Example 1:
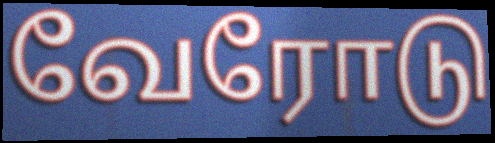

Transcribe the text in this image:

வேரோடு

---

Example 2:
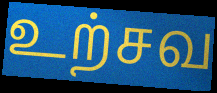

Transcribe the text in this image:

உற்சவ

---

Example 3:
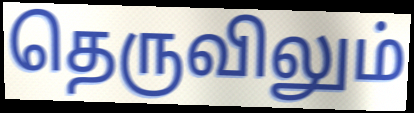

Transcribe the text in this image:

தெருவிலும்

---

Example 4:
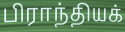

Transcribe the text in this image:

பிராந்தியக்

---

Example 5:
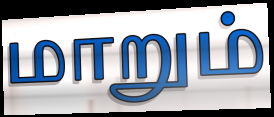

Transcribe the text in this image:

மாறும்